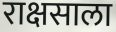
राक्षसाला